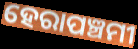
ହେରାପଞ୍ଚମୀ